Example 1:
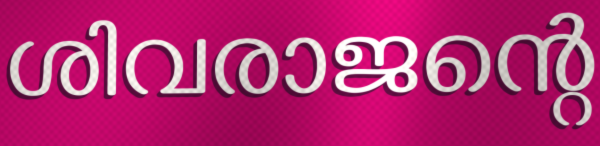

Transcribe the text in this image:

ശിവരാജന്റെ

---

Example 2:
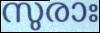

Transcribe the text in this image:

സുരാഃ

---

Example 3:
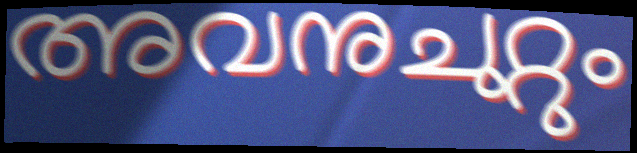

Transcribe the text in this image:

അവനുചുറ്റും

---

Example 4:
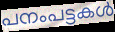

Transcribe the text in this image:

പനംപട്ടകൾ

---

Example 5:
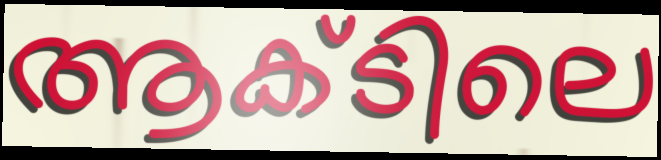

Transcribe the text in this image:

ആക്ടിലെ